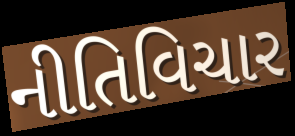
નીતિવિચાર